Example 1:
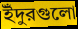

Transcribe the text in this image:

ইঁদুরগুলো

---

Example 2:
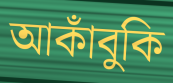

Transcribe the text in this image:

আকাঁবুকি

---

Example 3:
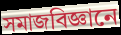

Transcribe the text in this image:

সমাজবিজ্ঞানে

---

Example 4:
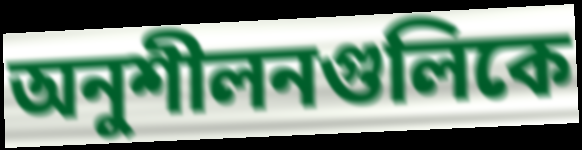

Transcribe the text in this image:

অনুশীলনগুলিকে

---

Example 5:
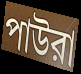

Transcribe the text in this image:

পাউরা